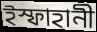
ইস্ফাহানী